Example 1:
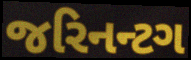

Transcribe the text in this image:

જરિનન્ટગ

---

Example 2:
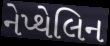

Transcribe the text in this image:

નેપ્થેલિન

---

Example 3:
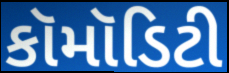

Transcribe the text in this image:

કૉમૉડિટી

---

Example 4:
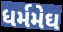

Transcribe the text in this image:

ધર્મમેઘ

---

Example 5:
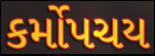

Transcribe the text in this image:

કર્મોપચય